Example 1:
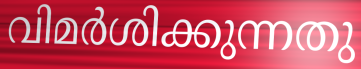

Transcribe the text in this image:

വിമർശിക്കുന്നതു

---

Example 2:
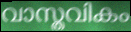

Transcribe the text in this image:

വാസ്തവികം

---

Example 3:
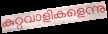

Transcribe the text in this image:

കുറ്റവാളികളെന്നു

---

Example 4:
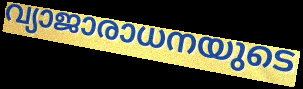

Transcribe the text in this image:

വ്യാജാരാധനയുടെ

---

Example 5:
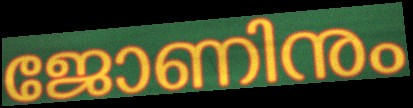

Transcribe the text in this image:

ജോണിനും